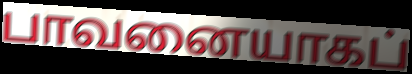
பாவனையாகப்